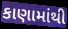
કાણામાંથી